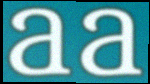
aa